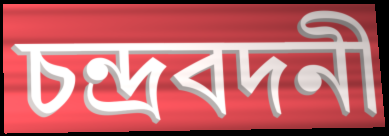
চন্দ্রবদনী